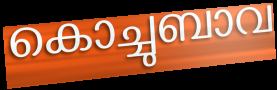
കൊച്ചുബാവ